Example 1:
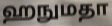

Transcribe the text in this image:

ஹநுமதா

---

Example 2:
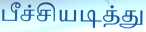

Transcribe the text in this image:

பீச்சியடித்து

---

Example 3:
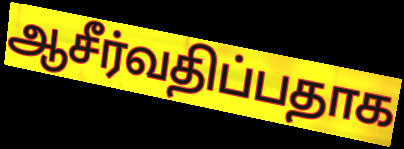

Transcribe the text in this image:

ஆசீர்வதிப்பதாக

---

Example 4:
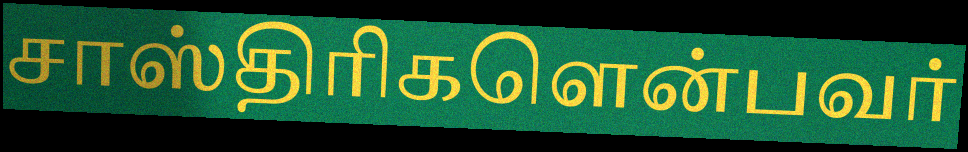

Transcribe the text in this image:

சாஸ்திரிகளென்பவர்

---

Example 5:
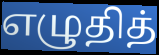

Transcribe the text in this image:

எழுதித்